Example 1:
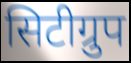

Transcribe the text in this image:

सिटीग्रुप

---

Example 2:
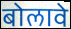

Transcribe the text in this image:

बोलावे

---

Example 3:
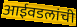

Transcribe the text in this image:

आईवडलांची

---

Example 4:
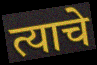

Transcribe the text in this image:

त्याचे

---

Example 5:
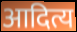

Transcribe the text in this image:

आदित्य